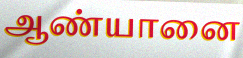
ஆண்யானை